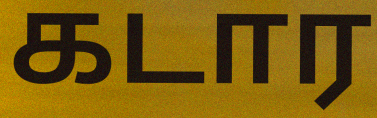
கடார